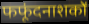
फफूंदनाशकों